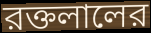
রক্তলালের